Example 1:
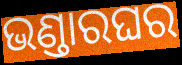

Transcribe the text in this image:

ଭଣ୍ଡାରଘର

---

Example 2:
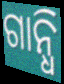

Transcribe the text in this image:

ଗାନ୍ଧି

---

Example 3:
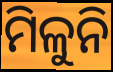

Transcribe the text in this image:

ମିଳୁନି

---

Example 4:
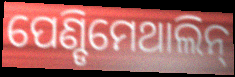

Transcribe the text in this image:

ପେଣ୍ଡିମେଥାଲିନ୍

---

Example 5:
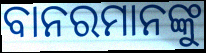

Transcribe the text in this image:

ବାନରମାନଙ୍କୁ